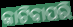
କାଟିବାପରି